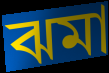
ঝমা